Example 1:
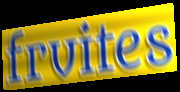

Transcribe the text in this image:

fruites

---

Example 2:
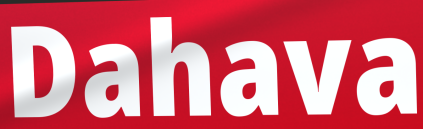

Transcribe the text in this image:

Dahava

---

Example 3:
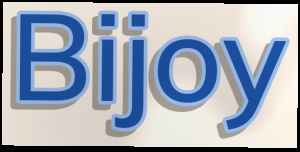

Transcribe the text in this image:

Bijoy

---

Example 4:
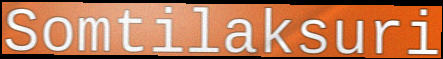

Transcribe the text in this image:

Somtilaksuri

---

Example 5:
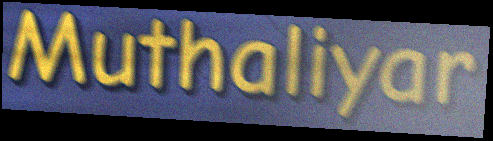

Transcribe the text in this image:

Muthaliyar